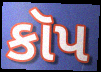
કૉપ